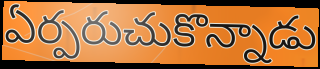
ఏర్పరుచుకొన్నాడు